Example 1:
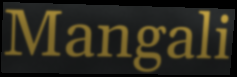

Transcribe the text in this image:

Mangali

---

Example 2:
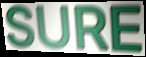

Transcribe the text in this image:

SURE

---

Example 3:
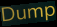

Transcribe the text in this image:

Dump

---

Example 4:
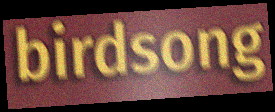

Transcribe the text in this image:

birdsong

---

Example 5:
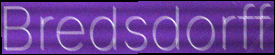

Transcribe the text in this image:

Bredsdorff